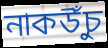
নাকউঁচু